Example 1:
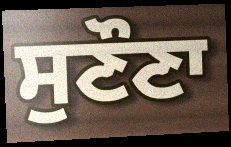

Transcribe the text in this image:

ਸੁਣੌਣਾ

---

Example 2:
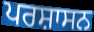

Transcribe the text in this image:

ਪਰਸ਼ਾਸਨ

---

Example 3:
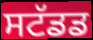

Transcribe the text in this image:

ਸਟੱਡਡ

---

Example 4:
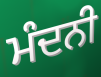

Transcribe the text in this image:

ਮੰਦਨੀ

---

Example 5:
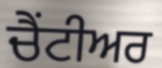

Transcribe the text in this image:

ਚੈਂਟੀਅਰ